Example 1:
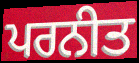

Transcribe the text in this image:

ਪਰਨੀਤ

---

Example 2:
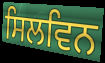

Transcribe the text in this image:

ਸਿਲਵਿਨ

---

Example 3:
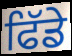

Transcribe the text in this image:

ਫਿੱਡੇ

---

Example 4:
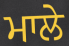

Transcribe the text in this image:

ਮਾਲੇ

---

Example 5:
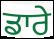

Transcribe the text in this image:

ਡਾਰੇ